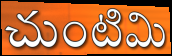
చుంటిమి